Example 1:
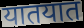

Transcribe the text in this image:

यातयात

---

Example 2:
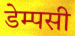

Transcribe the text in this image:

डेम्पसी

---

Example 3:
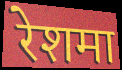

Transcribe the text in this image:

रेशमा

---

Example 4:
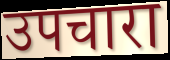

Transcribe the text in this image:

उपचारा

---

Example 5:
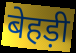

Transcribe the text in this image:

बेहड़ी